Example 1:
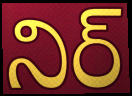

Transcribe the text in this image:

నిర్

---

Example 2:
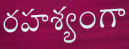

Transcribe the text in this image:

రహశ్యంగా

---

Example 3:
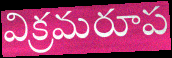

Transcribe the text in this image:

విక్రమరూప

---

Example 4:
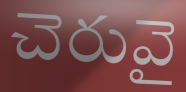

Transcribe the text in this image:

చెరువై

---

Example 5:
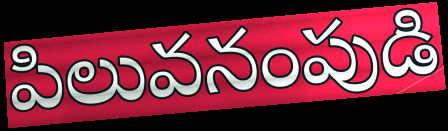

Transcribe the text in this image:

పిలువనంపుడి